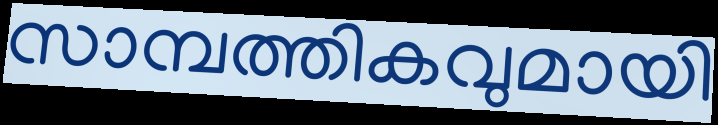
സാമ്പത്തികവുമായി